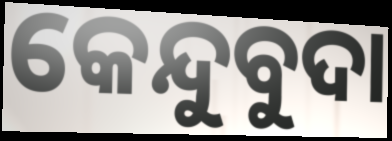
କେନ୍ଦୁବୁଦା